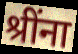
श्रींना